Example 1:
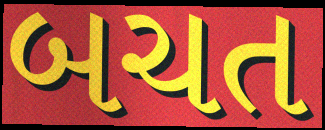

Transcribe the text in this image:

બચત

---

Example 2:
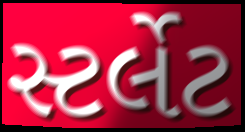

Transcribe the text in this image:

સ્ટર્લેટ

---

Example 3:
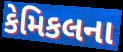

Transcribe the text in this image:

કેમિકલના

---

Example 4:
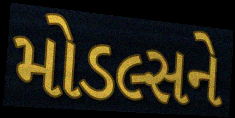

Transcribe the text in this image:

મોડલ્સને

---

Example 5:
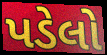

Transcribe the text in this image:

પડેલો